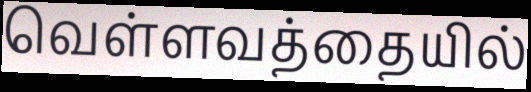
வெள்ளவத்தையில்